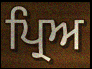
ਪ੍ਰਿਅ